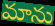
మాను